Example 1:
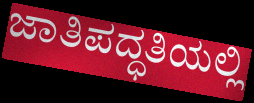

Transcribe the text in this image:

ಜಾತಿಪದ್ಧತಿಯಲ್ಲಿ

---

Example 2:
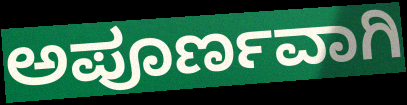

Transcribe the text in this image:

ಅಪೂರ್ಣವಾಗಿ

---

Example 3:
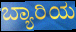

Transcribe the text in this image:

ಬ್ಯಾರಿಯ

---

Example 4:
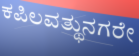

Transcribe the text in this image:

ಕಪಿಲವತ್ಥುನಗರೇ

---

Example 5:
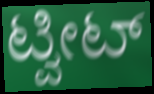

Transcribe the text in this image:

ಟ್ವೀಟ್